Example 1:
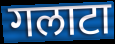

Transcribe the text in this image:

गलाटा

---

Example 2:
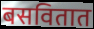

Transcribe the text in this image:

बसवितात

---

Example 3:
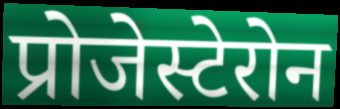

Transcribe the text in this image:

प्रोजेस्टेरोन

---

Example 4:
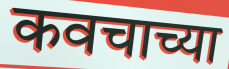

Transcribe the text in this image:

कवचाच्या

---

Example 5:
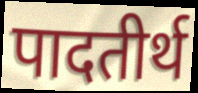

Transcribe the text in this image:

पादतीर्थ